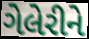
ગેલેરીને